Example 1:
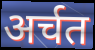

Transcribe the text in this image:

अर्चत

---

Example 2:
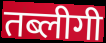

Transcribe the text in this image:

तब्लीगी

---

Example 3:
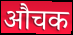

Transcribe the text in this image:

औचक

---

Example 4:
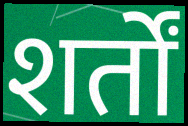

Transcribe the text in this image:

शर्तों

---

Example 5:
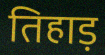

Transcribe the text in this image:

तिहाड़